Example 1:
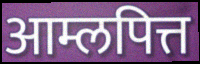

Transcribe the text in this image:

आम्लपित्त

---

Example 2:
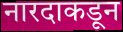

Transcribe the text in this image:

नारदाकडून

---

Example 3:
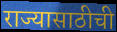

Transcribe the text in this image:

राज्यासाठीची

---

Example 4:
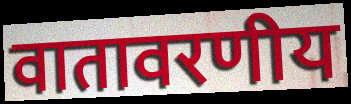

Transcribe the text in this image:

वातावरणीय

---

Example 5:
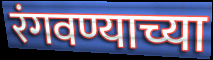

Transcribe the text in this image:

रंगवण्याच्या